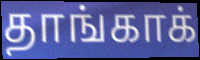
தாங்காக்